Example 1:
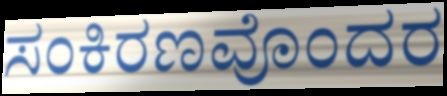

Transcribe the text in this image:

ಸಂಕಿರಣವೊಂದರ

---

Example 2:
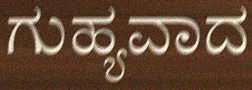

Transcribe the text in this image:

ಗುಹ್ಯವಾದ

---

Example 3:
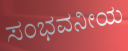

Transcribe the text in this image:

ಸಂಭವನೀಯ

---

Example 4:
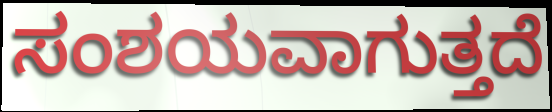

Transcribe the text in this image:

ಸಂಶಯವಾಗುತ್ತದೆ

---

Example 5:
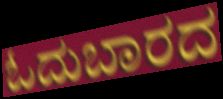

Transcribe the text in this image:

ಓದುಬಾರದ